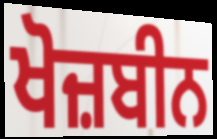
ਖੋਜ਼ਬੀਨ